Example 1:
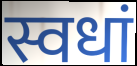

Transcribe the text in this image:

स्वधां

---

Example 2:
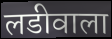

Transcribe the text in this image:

लडीवाला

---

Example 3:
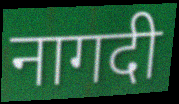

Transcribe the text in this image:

नागदी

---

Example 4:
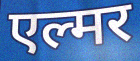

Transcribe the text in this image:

एल्मर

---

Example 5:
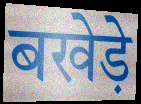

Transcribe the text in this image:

बखेड़े